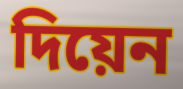
দিয়েন